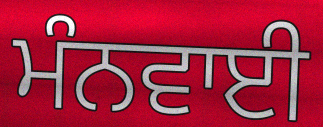
ਮੰਨਵਾਈ